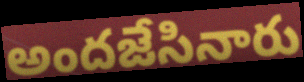
అందజేసినారు